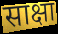
साक्षा